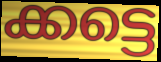
ക്കട്ടെ